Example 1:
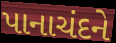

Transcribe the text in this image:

પાનાચંદને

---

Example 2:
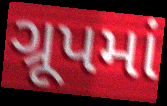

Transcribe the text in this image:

ગ્રૂપમાં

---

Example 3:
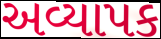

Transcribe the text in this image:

અવ્યાપક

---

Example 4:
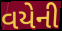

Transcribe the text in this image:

વયેની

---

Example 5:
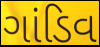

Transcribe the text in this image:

ગાંડિવ